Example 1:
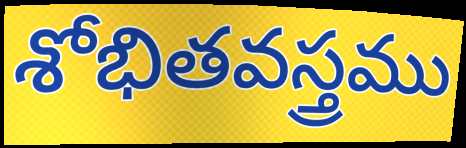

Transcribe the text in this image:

శోభితవస్త్రము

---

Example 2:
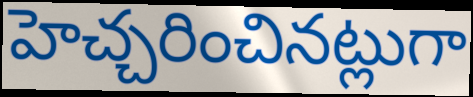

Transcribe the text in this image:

హెచ్చరించినట్లుగా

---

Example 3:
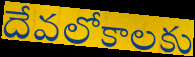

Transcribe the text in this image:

దేవలోకాలకు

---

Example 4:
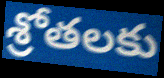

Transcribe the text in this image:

శ్రోతలకు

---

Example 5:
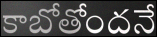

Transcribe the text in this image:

కాబోతోందనే